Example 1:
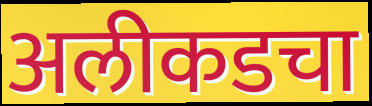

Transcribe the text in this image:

अलीकडचा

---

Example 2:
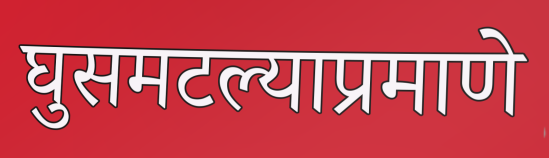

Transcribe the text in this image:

घुसमटल्याप्रमाणे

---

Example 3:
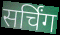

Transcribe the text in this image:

सर्चिंग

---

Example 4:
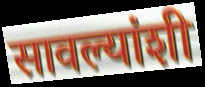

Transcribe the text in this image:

सावल्यांशी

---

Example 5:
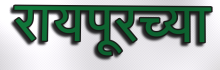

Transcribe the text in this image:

रायपूरच्या